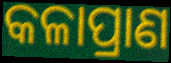
କଳାପ୍ରାଣ